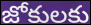
జోకులకు